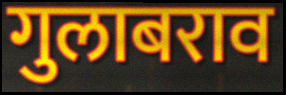
गुलाबराव